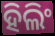
ହିଲିଂ